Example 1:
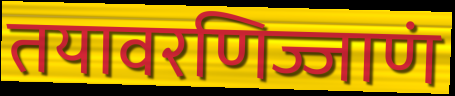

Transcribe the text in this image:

तयावरणिज्जाणं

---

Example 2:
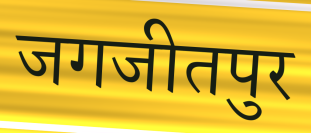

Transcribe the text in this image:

जगजीतपुर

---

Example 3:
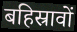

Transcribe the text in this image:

बहिस्रावों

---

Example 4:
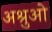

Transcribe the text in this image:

अश्रुओ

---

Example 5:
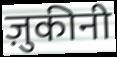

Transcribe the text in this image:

ज़ुकीनी